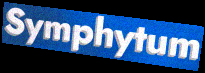
Symphytum